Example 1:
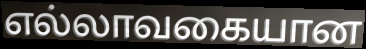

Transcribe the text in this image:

எல்லாவகையான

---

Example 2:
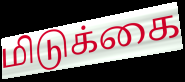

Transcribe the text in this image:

மிடுக்கை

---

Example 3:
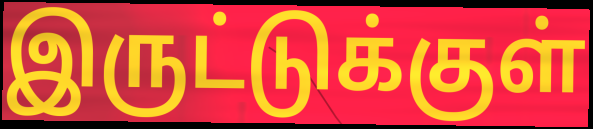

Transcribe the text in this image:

இருட்டுக்குள்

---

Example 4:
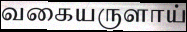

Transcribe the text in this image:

வகையருளாய்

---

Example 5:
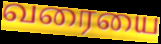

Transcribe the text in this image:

வரையை